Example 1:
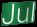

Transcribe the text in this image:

Jul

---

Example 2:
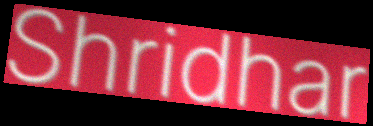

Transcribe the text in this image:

Shridhar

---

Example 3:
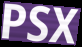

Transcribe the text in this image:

PSX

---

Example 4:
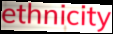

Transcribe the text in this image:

ethnicity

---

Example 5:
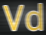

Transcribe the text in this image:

Vd